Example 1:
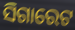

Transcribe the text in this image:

ସିଗାରେଟ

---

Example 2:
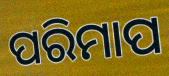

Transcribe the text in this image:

ପରିମାପ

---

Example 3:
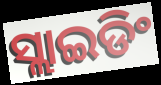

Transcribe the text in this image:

ସ୍ଲାଇଡିଂ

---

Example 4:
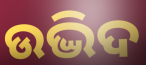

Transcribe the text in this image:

ଉଦ୍ଭିଦ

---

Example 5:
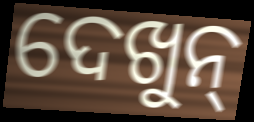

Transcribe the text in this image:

ଦେଖୁନ୍